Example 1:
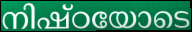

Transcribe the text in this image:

നിഷ്ഠയോടെ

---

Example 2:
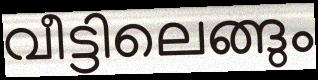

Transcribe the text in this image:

വീട്ടിലെങ്ങും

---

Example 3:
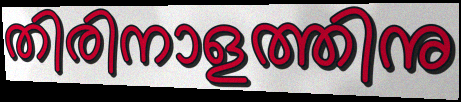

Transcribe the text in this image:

തിരിനാളത്തിനു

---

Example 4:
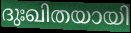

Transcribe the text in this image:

ദുഃഖിതയായി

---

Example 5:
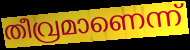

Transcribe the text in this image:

തീവ്രമാണെന്ന്